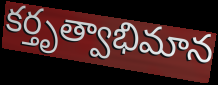
కర్తృత్వాభిమాన